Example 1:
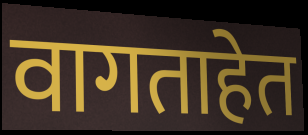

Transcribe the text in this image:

वागताहेत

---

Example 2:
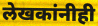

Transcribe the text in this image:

लेखकांनीही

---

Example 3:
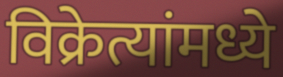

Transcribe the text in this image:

विक्रेत्यांमध्ये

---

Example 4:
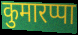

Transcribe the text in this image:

कुमारप्पा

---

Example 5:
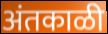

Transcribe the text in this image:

अंतकाळी